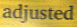
adjusted